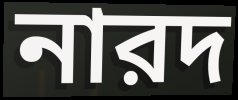
নারদ